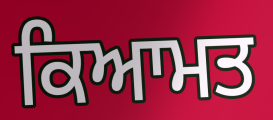
ਕਿਆਮਤ